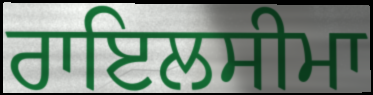
ਰਾਇਲਸੀਮਾ